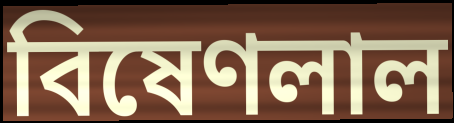
বিষেণলাল